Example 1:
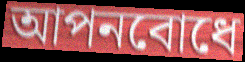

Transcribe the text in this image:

আপনবোধে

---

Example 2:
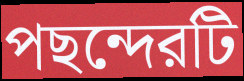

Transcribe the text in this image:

পছন্দেরটি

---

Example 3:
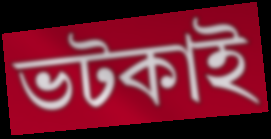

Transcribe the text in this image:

ভটকাই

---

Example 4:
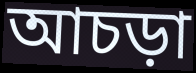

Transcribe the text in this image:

আচড়া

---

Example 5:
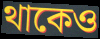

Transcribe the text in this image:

থাকেও